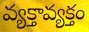
వ్యక్తావ్యక్తం